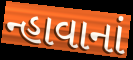
ન્હાવાનાં